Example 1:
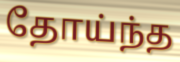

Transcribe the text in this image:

தோய்ந்த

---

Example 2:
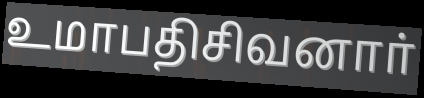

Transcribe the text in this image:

உமாபதிசிவனார்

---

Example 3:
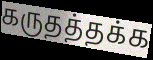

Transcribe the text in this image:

கருதத்தக்க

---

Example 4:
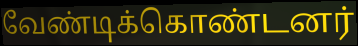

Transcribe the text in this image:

வேண்டிக்கொண்டனர்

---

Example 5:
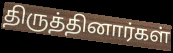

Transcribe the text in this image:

திருத்தினார்கள்